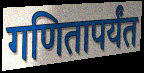
गणितापर्यंत